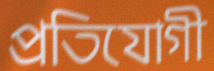
প্ৰতিযোগী